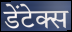
डेंटेक्स